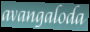
avangaloda